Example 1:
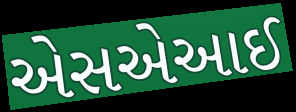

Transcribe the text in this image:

એસએઆઈ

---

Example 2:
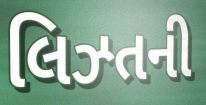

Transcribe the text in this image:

લિઝ્તની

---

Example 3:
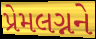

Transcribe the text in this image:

પ્રેમલગ્નને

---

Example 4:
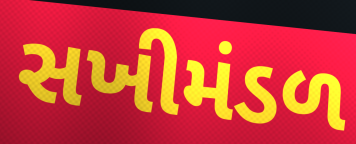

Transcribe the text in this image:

સખીમંડળ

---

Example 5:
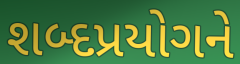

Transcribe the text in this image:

શબ્દપ્રયોગને